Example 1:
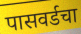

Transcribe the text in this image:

पासवर्डचा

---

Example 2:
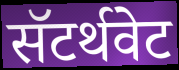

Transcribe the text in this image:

सॅटर्थवेट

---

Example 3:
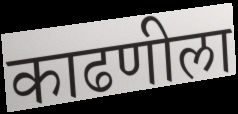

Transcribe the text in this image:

काढणीला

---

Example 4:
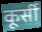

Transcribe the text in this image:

कूर्सी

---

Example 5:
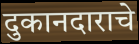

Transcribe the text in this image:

दुकानदाराचे